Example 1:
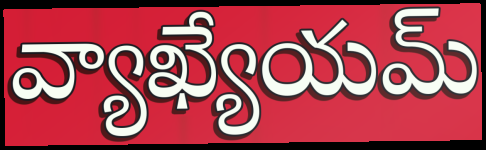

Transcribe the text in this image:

వ్యాఖ్యేయమ్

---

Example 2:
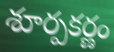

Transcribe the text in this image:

శూర్పకర్ణం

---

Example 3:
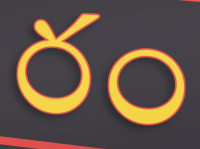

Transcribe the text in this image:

రం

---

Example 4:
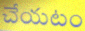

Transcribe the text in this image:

చేయటం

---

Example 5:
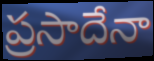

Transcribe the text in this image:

ప్రసాదేనా